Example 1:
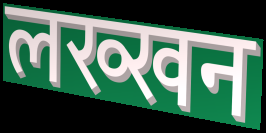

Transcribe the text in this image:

लख्खन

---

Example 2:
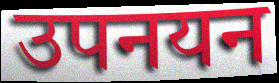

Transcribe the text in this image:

उपनयन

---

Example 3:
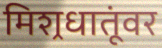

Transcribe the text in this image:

मिश्रधातूंवर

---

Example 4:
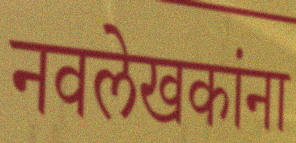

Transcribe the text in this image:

नवलेखकांना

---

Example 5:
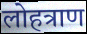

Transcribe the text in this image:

लोहत्राण